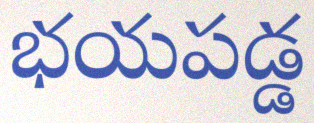
భయపడ్డ